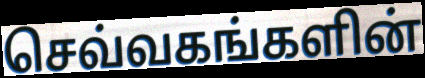
செவ்வகங்களின்